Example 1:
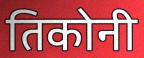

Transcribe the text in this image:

तिकोनी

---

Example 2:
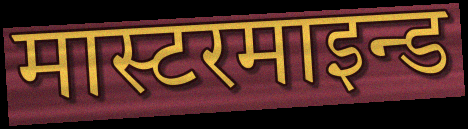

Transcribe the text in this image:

मास्टरमाइन्ड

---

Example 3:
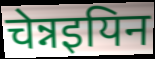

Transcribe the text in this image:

चेन्नइयिन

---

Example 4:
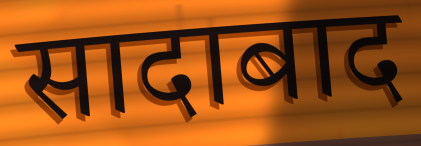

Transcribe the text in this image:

सादाबाद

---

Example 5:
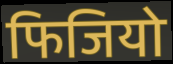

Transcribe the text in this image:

फिजियो